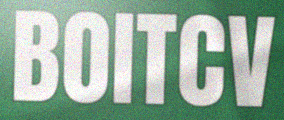
BOITCV